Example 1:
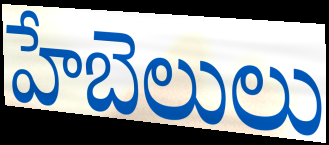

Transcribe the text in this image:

హేబెలులు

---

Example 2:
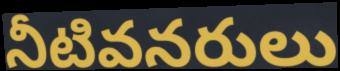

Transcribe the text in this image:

నీటివనరులు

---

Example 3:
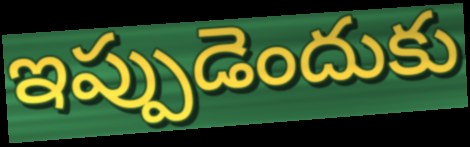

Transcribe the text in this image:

ఇప్పుడెందుకు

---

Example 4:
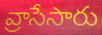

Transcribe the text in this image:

వ్రాసేసారు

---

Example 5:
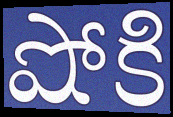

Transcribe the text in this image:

షోకి